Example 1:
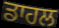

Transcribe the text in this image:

ਡਾਹਲ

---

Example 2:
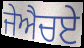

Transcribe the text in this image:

ਜੇਐਚਏ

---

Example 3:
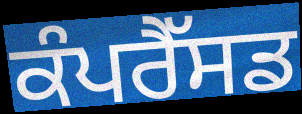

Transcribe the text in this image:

ਕੰਪਰੈੱਸਡ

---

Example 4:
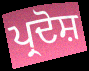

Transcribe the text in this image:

ਪ੍ਰਦੋਸ਼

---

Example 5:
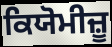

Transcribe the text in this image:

ਕਿਯੋਮੀਜ਼ੂ